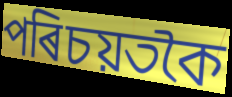
পৰিচয়তকৈ